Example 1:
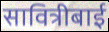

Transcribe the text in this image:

सावित्रीबाई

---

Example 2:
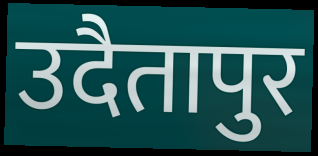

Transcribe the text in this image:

उदैतापुर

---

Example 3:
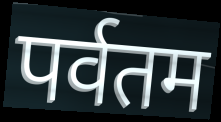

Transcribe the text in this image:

पर्वतम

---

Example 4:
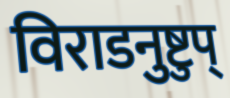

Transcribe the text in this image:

विराडनुष्टुप्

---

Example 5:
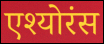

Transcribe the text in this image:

एश्योरंस